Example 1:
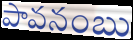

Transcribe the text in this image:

పావనంబు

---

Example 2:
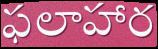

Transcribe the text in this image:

ఫలాహార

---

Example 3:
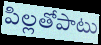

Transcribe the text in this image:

పిల్లతోపాటు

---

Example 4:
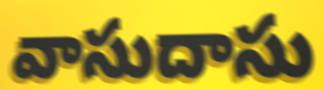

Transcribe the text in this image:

వాసుదాసు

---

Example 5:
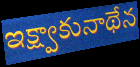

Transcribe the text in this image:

ఇక్ష్వాకునాథేన